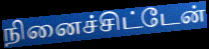
நினைச்சிட்டேன்